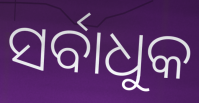
ସର୍ବାଧୁକ